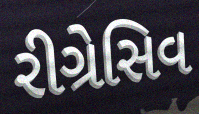
રીગ્રેસિવ